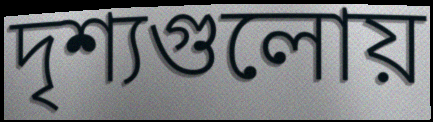
দৃশ্যগুলোয়